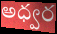
అధ్వర